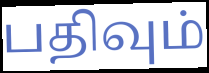
பதிவும்